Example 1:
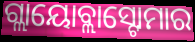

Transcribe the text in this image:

ଗ୍ଲାୟୋବ୍ଲାସ୍ଟୋମାର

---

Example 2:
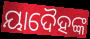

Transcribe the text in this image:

ୟାଦୈହଙ୍କ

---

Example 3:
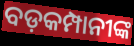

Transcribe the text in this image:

ବଡ଼କମ୍ପାନୀଙ୍କ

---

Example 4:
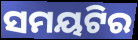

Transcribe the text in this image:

ସମୟଟିର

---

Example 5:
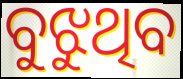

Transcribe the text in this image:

ବୁଝୁଥିବ